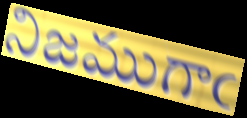
నిజముగాఁ